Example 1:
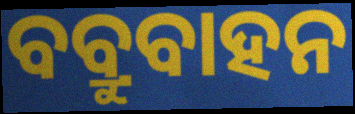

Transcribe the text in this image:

ବବ୍ରୁବାହନ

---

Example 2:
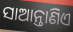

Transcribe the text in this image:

ସାଆନ୍ତାଣିଏ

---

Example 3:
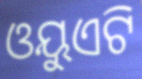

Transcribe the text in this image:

ଓୟୁଏଟି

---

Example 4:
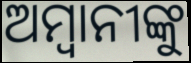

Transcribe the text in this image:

ଅମ୍ବାନୀଙ୍କୁ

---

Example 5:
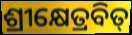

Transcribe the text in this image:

ଶ୍ରୀକ୍ଷେତ୍ରବିତ୍